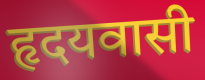
हृदयवासी